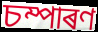
চম্পাৰণ